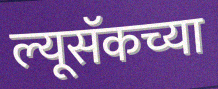
ल्यूसॅकच्या